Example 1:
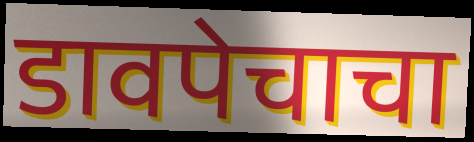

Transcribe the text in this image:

डावपेचाचा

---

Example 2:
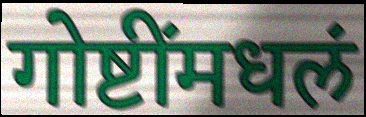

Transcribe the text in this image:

गोष्टींमधलं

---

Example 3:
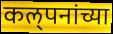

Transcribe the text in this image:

कल्पनांच्या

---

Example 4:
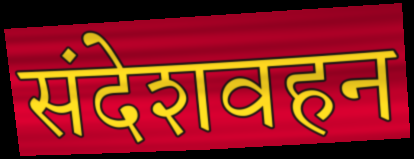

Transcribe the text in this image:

संदेशवहन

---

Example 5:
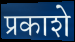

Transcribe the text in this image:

प्रकाशे